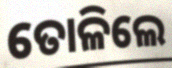
ତୋଳିଲେ